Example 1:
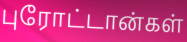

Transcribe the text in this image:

புரோட்டான்கள்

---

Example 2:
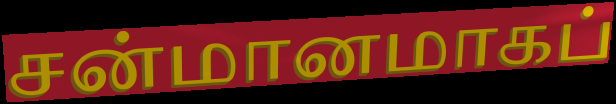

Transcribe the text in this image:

சன்மானமாகப்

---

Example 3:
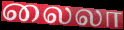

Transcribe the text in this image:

லைலா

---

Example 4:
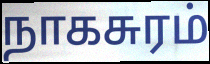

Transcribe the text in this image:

நாகசுரம்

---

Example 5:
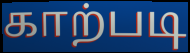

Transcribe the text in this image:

காற்படி